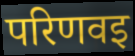
परिणवइ